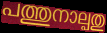
പത്തുനാല്പതു